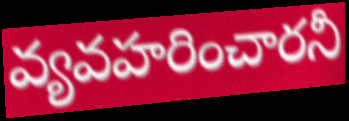
వ్యవహరించారనీ